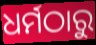
ଧର୍ମଠାରୁ